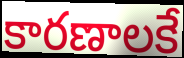
కారణాలకే